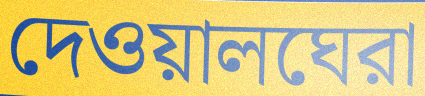
দেওয়ালঘেরা